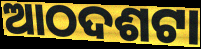
ଆଠଦଶଟା